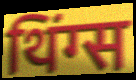
थिंग्स